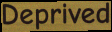
Deprived